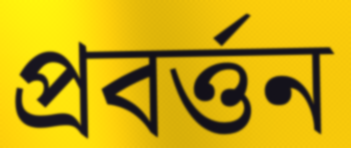
প্ৰবৰ্ত্তন